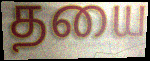
தயை